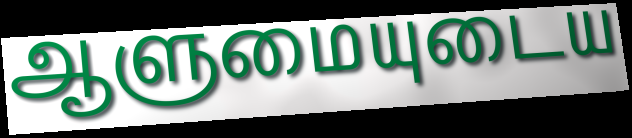
ஆளுமையுடைய